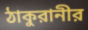
ঠাকুরানীর